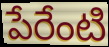
పేరేంటి